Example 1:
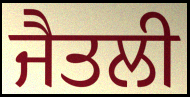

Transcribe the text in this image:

ਜੈਤਲੀ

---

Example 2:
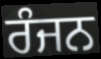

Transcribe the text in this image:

ਰੰਜਨ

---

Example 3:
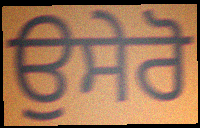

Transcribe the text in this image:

ਉਸੇਰੋ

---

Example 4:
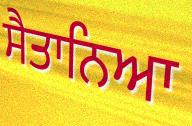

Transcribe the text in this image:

ਸੈਤਾਨਿਆ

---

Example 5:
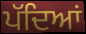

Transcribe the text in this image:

ਪੱਦਿਆਂ